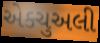
એક્ચુઅલી